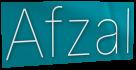
Afzal